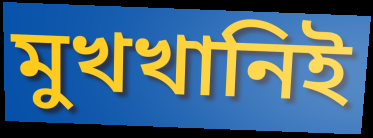
মুখখানিই